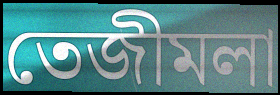
তেজীমলা